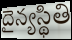
దైన్యస్థితి